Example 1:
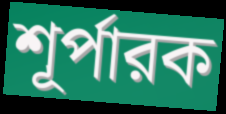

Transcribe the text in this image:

শূর্পারক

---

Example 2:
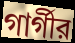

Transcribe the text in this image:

গার্গীর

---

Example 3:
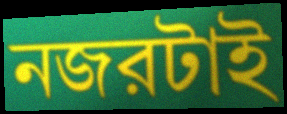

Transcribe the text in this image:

নজরটাই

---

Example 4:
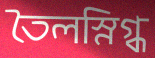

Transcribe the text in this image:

তৈলস্নিগ্ধ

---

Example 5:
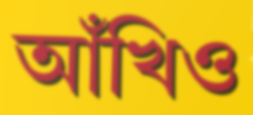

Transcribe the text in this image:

আঁখিও